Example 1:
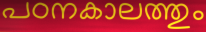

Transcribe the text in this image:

പഠനകാലത്തും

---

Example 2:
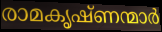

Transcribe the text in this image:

രാമകൃഷ്ണന്മാർ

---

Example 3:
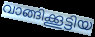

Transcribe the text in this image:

വാങ്ങിക്കൂട്ടിയ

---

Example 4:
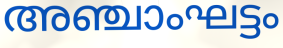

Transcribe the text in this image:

അഞ്ചാംഘട്ടം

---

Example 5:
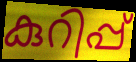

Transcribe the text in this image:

കുറിപ്പ്